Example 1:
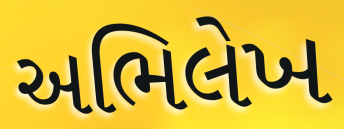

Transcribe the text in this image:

અભિલેખ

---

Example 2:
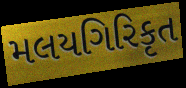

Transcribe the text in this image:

મલયગિરિકૃત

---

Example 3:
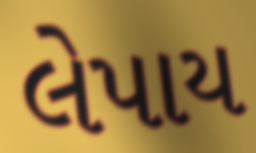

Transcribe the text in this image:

લેપાય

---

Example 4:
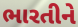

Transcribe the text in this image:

ભારતીને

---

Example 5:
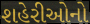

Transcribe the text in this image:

શહેરીઓનો